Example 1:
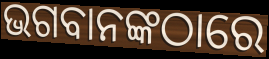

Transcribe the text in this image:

ଭଗବାନଙ୍କଠାରେ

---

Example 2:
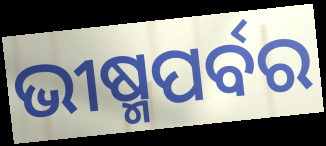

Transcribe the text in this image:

ଭୀଷ୍ମପର୍ବର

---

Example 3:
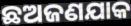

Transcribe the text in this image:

ଛଅଜଣଯାକ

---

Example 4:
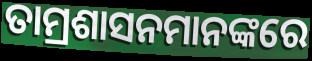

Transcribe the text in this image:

ତାମ୍ରଶାସନମାନଙ୍କରେ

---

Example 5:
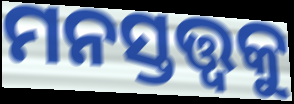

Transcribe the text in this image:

ମନସ୍ତତ୍ତ୍ୱକୁ